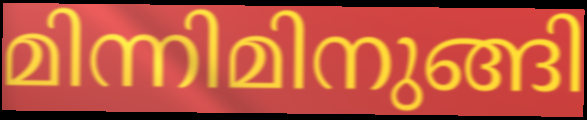
മിന്നിമിനുങ്ങി